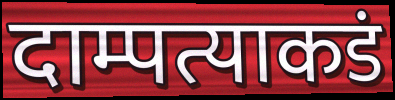
दाम्पत्याकडं